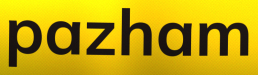
pazham